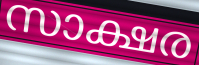
സാക്ഷര